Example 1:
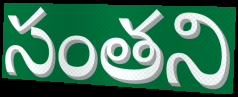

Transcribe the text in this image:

సంతని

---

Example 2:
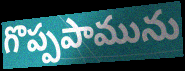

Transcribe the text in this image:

గొప్పపామును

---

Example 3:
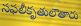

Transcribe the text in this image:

సఫలీకృతులౌతారు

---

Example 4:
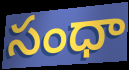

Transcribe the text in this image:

సంధా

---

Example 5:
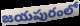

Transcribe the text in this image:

జయపురంలో